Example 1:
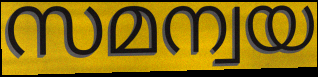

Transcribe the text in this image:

സമന്വയ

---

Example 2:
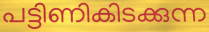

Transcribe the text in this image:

പട്ടിണികിടക്കുന്ന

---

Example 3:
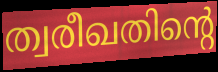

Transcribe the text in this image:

ത്വരീഖതിന്റെ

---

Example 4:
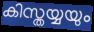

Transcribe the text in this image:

കിസ്തയ്യയും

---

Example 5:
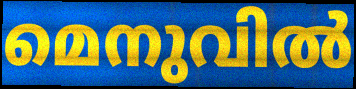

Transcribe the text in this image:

മെനുവിൽ